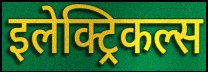
इलेक्ट्रिकल्स